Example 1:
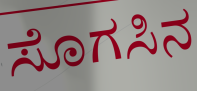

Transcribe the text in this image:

ಸೊಗಸಿನ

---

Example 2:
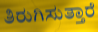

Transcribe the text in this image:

ತಿರುಗಿಸುತ್ತಾರೆ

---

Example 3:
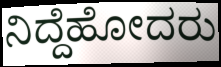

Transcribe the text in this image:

ನಿದ್ದೆಹೋದರು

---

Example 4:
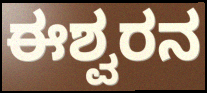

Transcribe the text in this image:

ಈಶ್ವರನ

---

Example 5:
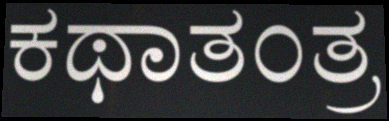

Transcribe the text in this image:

ಕಥಾತಂತ್ರ